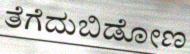
ತೆಗೆದುಬಿಡೋಣ